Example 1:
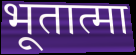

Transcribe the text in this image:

भूतात्मा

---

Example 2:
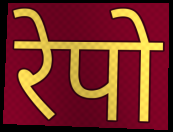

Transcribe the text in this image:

रेपो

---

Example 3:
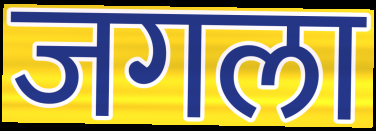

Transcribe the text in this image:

जगला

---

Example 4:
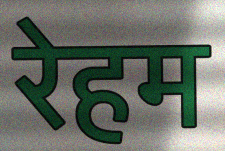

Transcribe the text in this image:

रेहम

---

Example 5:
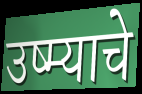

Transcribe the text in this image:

उष्म्याचे